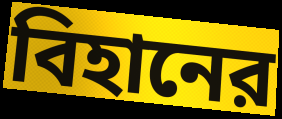
বিহানের